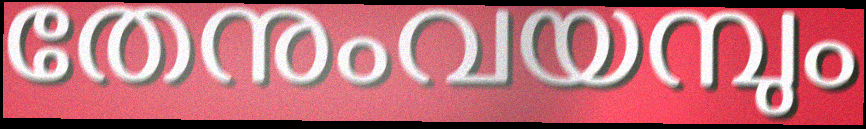
തേനുംവയമ്പും